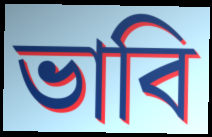
ভাবি